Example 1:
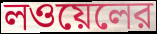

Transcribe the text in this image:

লওয়েলের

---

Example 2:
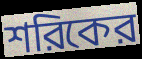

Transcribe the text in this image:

শরিকের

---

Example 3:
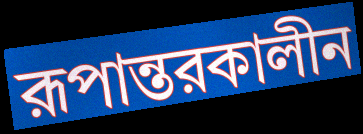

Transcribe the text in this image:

রূপান্তরকালীন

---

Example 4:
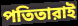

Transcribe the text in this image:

পতিতারাই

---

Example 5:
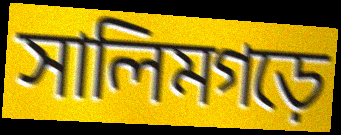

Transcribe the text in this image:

সালিমগড়ে